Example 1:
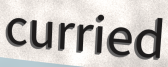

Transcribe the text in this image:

curried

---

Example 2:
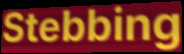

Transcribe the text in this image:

Stebbing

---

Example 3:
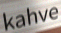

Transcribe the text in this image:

kahve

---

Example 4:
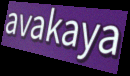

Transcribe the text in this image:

avakaya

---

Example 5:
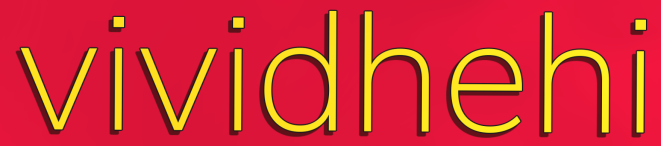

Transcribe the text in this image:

vividhehi